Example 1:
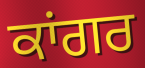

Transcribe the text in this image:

ਕਾਂਗਰ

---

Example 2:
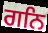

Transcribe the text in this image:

ਗਨਿ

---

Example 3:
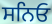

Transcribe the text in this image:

ਸਨਿਓ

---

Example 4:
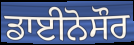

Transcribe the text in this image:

ਡਾਈਨੋਸੌਰ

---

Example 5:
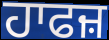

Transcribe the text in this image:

ਹਾਫਜ਼